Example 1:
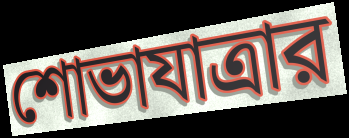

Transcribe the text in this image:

শোভাযাত্রার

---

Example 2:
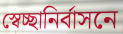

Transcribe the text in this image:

স্বেচ্ছানির্বাসনে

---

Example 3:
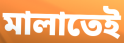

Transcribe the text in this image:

মালাতেই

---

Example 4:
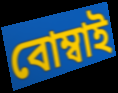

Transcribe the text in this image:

বোম্বাই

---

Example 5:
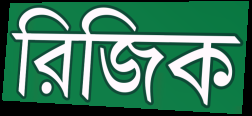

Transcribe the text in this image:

রিজিক